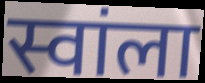
स्वांला